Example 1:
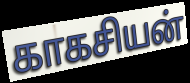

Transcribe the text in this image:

காகசியன்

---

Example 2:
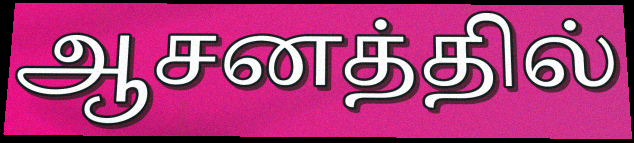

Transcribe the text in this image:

ஆசனத்தில்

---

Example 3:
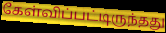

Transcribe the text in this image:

கேள்விப்பட்டிருந்தது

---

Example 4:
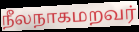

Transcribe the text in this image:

நீலநாகமறவர்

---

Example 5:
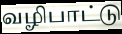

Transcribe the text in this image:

வழிபாட்டு